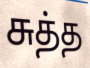
சுத்த